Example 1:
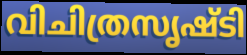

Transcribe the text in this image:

വിചിത്രസൃഷ്ടി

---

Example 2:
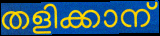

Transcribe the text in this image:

തളിക്കാന്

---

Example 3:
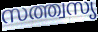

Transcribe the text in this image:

സത്ത്വസ്യ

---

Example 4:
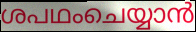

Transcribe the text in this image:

ശപഥംചെയ്യാൻ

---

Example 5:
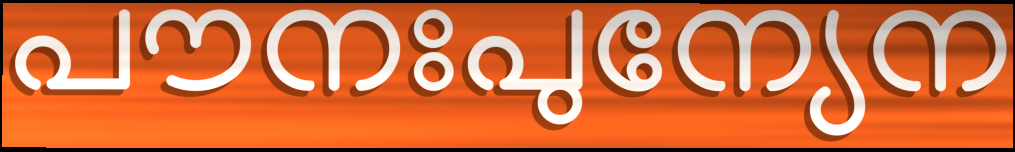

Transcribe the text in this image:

പൗനഃപുന്യേന